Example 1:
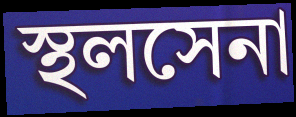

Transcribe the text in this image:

স্থলসেনা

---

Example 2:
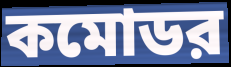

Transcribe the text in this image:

কমোডর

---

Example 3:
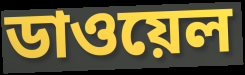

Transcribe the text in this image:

ডাওয়েল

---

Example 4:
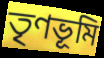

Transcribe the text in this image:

তৃণভূমি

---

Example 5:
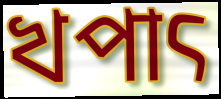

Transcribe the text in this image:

খপাৎ